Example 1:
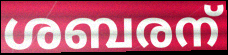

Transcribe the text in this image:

ശബരന്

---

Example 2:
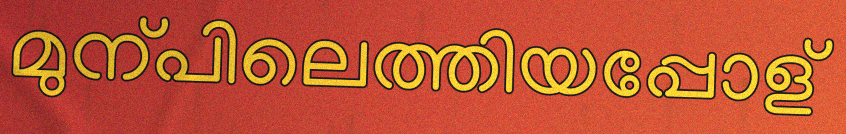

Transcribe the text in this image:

മുന്പിലെത്തിയപ്പോള്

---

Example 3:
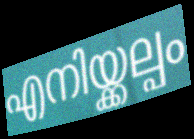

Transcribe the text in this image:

എനിയ്ക്കല്പം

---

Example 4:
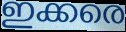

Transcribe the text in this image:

ഇക്കരെ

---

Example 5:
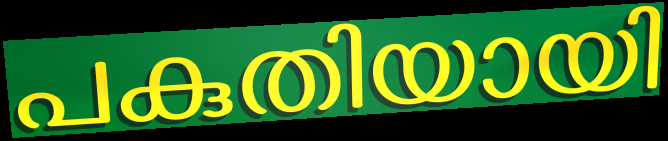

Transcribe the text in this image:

പകുതിയായി